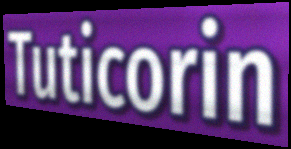
Tuticorin